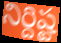
నిర్దిష్ట